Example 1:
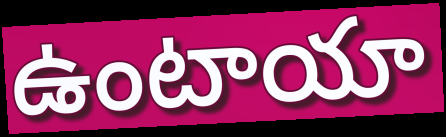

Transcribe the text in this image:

ఉంటాయా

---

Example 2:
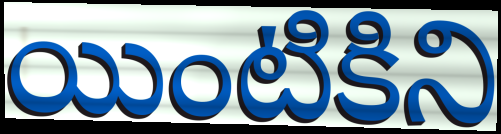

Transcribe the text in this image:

యింటికిని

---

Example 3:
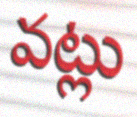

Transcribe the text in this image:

వట్లు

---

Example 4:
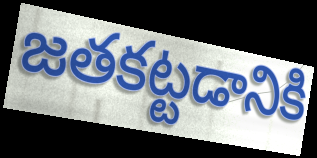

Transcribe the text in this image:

జతకట్టడానికి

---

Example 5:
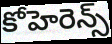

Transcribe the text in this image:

కోహెరెన్స్